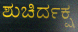
ಶುಚಿರ್ದಕ್ಷ